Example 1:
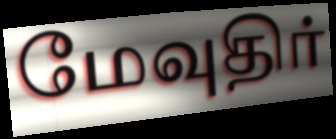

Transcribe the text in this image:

மேவுதிர்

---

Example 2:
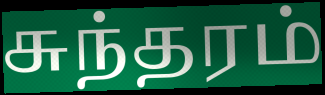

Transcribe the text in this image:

சுந்தரம்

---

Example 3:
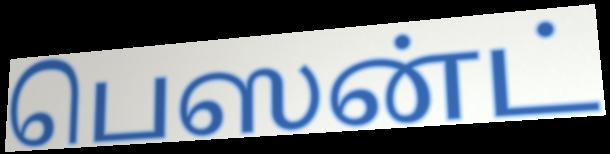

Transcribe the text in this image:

பெஸன்ட்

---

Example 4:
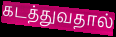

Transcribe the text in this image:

கடத்துவதால்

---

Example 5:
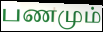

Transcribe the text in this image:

பணமும்